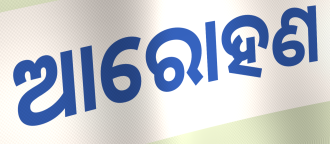
ଆରୋହଣ